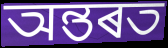
অন্তৰত